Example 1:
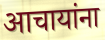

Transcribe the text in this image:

आचायांना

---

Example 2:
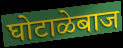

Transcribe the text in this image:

घोटाळेबाज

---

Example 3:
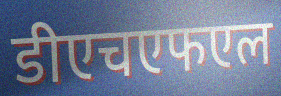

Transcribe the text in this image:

डीएचएफएल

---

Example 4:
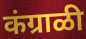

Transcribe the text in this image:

कंग्राळी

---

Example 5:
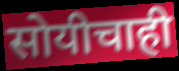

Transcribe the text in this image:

सोयीचाही